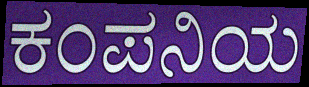
ಕಂಪನಿಯ